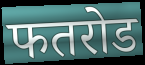
फतरोड